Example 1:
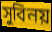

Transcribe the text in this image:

সুবিনয়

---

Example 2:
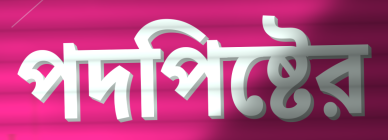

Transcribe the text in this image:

পদপিষ্টের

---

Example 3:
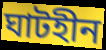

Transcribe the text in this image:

ঘাটহীন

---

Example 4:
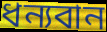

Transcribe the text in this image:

ধন্যবান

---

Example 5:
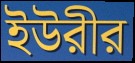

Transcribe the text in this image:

ইউরীর